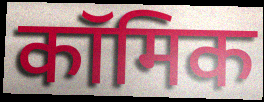
कॉमिक